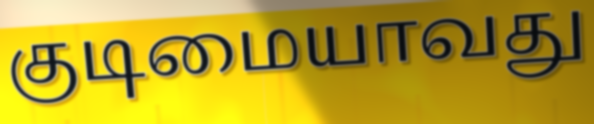
குடிமையாவது